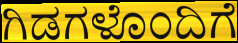
ಗಿಡಗಳೊಂದಿಗೆ